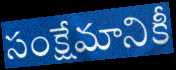
సంక్షేమానికీ